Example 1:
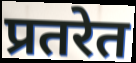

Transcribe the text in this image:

प्रतरेत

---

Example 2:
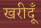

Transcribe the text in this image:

खरीदूँ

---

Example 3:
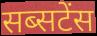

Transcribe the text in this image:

सब्सटेंस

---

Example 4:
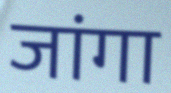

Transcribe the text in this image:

जांगा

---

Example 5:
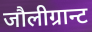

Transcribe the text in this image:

जौलीग्रान्ट